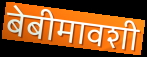
बेबीमावशी